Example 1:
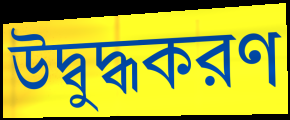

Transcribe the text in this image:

উদ্বুদ্ধকরণ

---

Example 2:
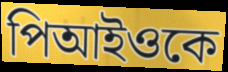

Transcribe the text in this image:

পিআইওকে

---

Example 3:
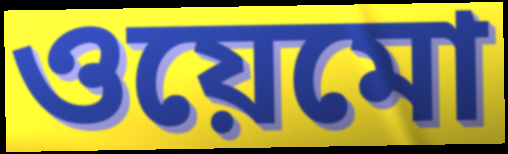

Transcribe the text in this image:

ওয়েমো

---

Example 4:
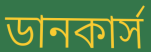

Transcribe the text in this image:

ডানকার্স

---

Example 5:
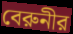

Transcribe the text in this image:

বেরুনীর